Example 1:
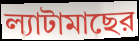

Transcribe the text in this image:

ল্যাটামাছের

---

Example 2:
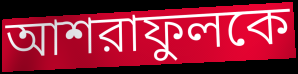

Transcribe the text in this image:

আশরাফুলকে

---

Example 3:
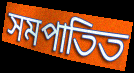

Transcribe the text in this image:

সমপাতিত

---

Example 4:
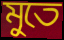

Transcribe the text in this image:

মুতে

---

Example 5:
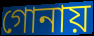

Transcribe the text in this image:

গোনায়